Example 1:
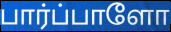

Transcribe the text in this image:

பார்ப்பாளோ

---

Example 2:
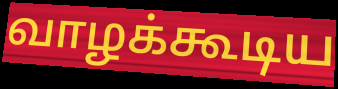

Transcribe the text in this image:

வாழக்கூடிய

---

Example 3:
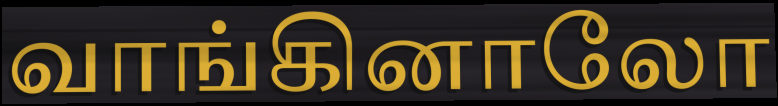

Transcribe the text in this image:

வாங்கினாலோ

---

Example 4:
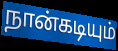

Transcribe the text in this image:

நான்கடியும்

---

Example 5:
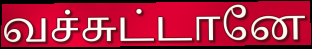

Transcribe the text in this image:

வச்சுட்டானே